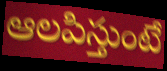
ఆలపిస్తుంటే